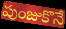
పుంజుకొనే